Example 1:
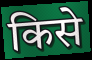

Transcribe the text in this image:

किसे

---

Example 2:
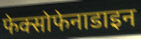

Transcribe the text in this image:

फेक्सोफेनाडाइन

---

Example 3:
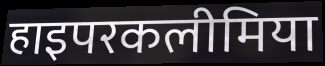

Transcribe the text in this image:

हाइपरकलीमिया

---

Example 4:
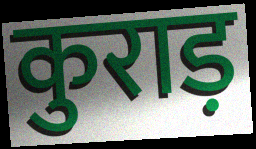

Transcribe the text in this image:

कुराड़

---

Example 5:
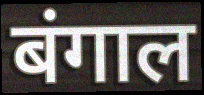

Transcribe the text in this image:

बंगाल